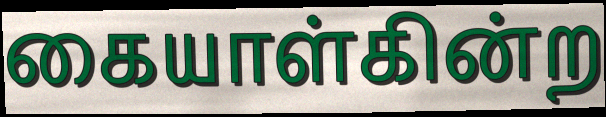
கையாள்கின்ற